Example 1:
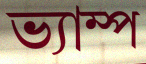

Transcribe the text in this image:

ভ্যাম্প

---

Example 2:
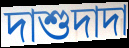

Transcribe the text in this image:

দাশুদাদা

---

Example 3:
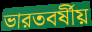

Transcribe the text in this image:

ভারতবর্ষীয়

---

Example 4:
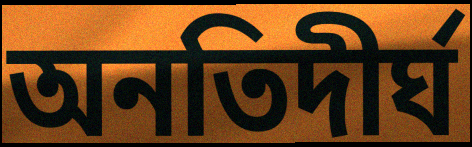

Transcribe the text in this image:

অনতিদীর্ঘ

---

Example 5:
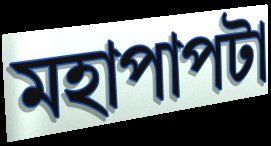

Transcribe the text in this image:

মহাপাপটা